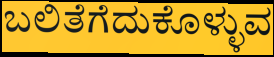
ಬಲಿತೆಗೆದುಕೊಳ್ಳುವ